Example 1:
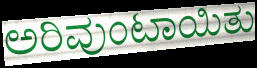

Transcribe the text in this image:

ಅರಿವುಂಟಾಯಿತು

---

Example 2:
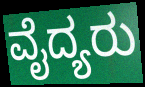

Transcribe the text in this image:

ವೈದ್ಯರು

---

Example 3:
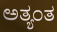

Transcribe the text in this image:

ಅತ್ಯಂತ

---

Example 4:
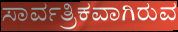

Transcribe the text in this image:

ಸಾರ್ವತ್ರಿಕವಾಗಿರುವ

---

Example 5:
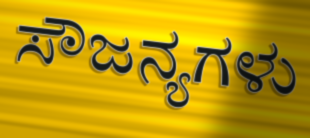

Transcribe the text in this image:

ಸೌಜನ್ಯಗಳು